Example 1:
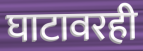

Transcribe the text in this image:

घाटावरही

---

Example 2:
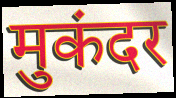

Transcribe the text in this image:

मुकंदर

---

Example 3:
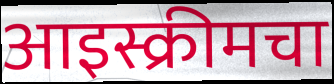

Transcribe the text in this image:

आइस्क्रीमचा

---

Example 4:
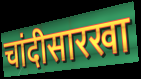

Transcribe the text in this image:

चांदीसारखा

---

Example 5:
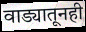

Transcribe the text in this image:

वाड्यातूनही